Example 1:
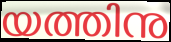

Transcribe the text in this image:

യത്തിനു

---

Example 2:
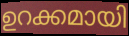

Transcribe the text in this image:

ഉറക്കമായി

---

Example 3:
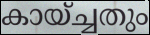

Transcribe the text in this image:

കായ്ച്ചതും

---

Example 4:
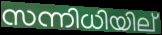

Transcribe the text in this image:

സന്നിധിയില്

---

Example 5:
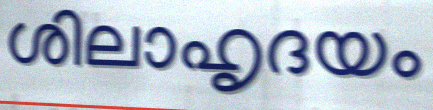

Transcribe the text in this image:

ശിലാഹൃദയം